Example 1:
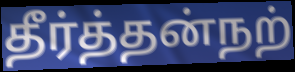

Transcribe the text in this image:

தீர்த்தன்நற்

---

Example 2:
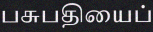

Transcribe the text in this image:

பசுபதியைப்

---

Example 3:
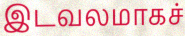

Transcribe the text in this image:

இடவலமாகச்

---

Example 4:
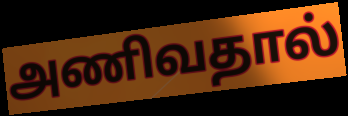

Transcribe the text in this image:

அணிவதால்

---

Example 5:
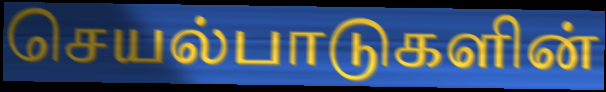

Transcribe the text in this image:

செயல்பாடுகளின்